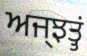
ਅਜ੍ਝਤ੍ਤਂ